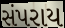
સંપરાય